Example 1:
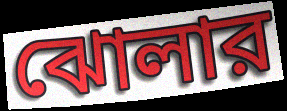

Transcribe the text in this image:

ঝোলার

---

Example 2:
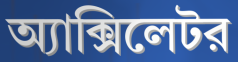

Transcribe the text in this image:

অ্যাক্সিলেটর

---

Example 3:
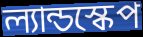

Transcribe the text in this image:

ল্যান্ডস্কেপ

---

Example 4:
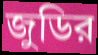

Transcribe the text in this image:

জুডির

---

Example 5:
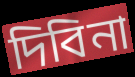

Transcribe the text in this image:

দিবিনা